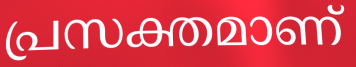
പ്രസക്തമാണ്